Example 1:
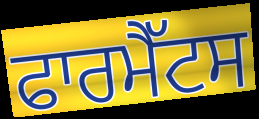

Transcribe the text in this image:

ਫਾਰਮੈੱਟਸ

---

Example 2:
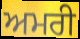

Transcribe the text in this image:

ਅਮਰੀ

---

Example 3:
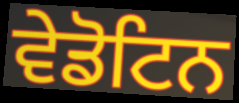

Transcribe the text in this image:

ਵੇਡੋਟਿਨ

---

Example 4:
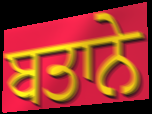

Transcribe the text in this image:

ਬਤਾਨੇ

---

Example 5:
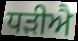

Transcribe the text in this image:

ਧੜੀਐ